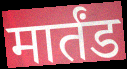
मार्तंड